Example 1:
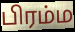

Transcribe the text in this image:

பிரம்ம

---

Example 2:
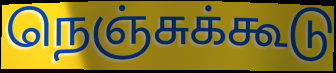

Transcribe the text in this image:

நெஞ்சுக்கூடு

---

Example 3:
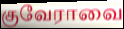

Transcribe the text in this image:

குவேராவை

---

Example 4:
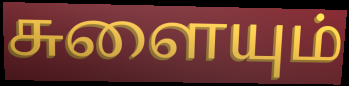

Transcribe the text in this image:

சுளையும்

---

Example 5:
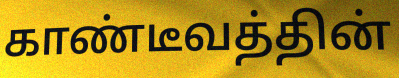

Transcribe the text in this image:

காண்டீவத்தின்